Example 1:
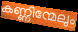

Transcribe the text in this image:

കണ്ണിന്മേലും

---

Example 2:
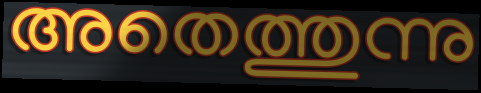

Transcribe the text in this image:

അതെത്തുന്നു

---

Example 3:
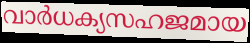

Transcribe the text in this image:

വാർധക്യസഹജമായ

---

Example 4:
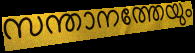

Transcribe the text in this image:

സന്താനത്തേയും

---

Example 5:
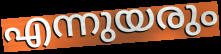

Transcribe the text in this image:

എന്നുയരും